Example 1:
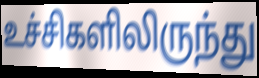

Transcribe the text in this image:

உச்சிகளிலிருந்து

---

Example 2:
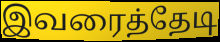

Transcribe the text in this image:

இவரைத்தேடி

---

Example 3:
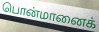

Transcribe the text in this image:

பொன்மானைக்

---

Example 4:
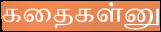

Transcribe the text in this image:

கதைகள்னு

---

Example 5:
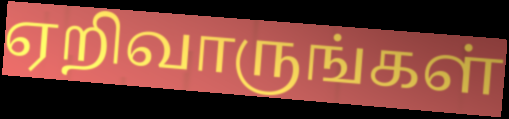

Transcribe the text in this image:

ஏறிவாருங்கள்